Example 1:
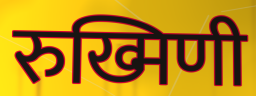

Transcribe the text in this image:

रुख्मिणी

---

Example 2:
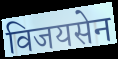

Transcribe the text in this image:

विजयसेन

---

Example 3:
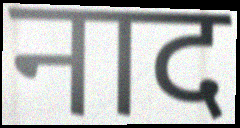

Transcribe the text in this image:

नाद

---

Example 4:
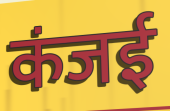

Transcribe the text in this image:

कंजई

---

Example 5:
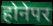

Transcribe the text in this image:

होनेपर